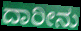
ದಾರೀನು